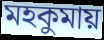
মহকুমায়